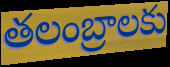
తలంబ్రాలకు